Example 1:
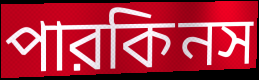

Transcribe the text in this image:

পারকিনস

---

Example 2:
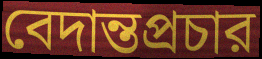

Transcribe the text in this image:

বেদান্তপ্রচার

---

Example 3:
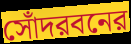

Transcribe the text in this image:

সোঁদরবনের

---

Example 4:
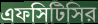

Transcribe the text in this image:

এফসিটিসির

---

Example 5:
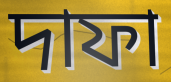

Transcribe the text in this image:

দাফা